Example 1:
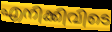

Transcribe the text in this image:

എനിക്കിവിടെ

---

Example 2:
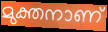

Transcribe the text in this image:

മുക്തനാണ്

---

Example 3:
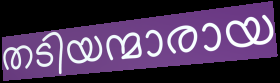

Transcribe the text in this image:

തടിയന്മാരായ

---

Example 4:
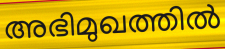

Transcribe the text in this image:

അഭിമുഖത്തിൽ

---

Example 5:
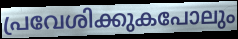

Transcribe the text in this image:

പ്രവേശിക്കുകപോലും